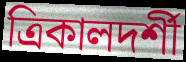
ত্রিকালদর্শী